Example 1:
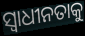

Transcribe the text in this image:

ସ୍ଵାଧୀନତାକୁ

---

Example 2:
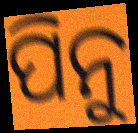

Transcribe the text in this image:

ପିନୁ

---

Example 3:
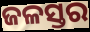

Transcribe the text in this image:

ଜଳସ୍ତର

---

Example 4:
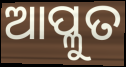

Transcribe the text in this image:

ଆପ୍ଳୁତ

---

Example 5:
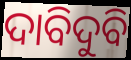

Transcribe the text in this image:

ଦାବିଦୁବି